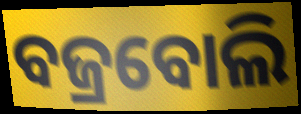
ବଜ୍ରବୋଲି